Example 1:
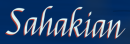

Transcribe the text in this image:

Sahakian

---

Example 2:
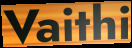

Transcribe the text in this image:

Vaithi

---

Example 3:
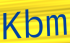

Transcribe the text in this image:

Kbm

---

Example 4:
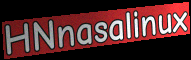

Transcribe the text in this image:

HNnasalinux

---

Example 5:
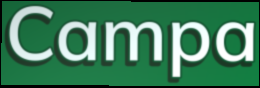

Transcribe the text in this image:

Campa